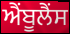
ਐੰਬੂਲੈੰਸ